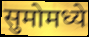
सुमोमध्ये